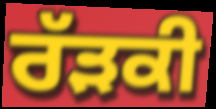
ਰੱੜਕੀ